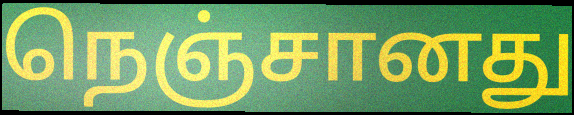
நெஞ்சானது